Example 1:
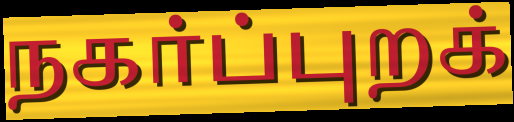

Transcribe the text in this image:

நகர்ப்புறக்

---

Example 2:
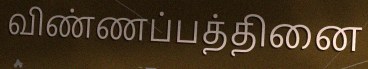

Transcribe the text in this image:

விண்ணப்பத்தினை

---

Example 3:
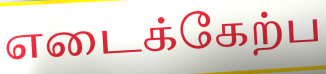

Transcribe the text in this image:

எடைக்கேற்ப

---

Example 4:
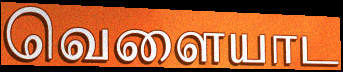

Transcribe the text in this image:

வெளையாட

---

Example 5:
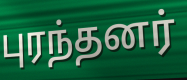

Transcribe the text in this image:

புரந்தனர்